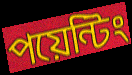
পয়েন্টিং